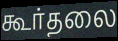
கூர்தலை